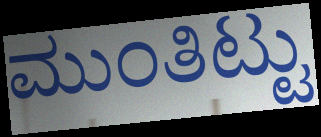
ಮುಂತಿಟ್ಟು